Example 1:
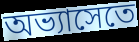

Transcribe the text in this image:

অভ্যাসেতে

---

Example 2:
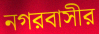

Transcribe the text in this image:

নগরবাসীর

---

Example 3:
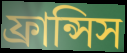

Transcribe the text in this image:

ফ্রান্সিস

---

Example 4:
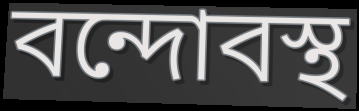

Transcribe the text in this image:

বন্দোবস্থ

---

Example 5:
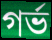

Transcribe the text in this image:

গর্ভ